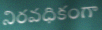
నిరవధికంగా